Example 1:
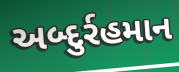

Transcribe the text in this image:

અબ્દુર્રહમાન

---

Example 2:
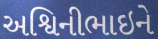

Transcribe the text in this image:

અશ્વિનીભાઇને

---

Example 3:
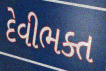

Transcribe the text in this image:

દેવીભક્ત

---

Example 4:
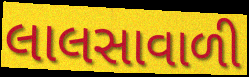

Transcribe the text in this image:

લાલસાવાળી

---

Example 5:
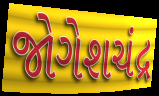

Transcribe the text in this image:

જોગેશચંદ્ર